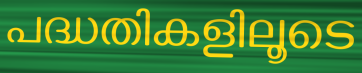
പദ്ധതികളിലൂടെ